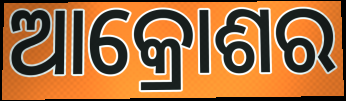
ଆକ୍ରୋଶର